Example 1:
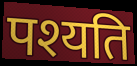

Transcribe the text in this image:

पश्यति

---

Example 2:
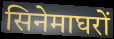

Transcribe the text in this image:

सिनेमाघरों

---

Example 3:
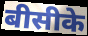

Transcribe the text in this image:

बीसीके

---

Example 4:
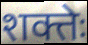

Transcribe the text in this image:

शक्तेः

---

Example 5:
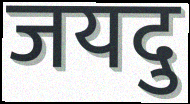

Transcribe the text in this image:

जयदु